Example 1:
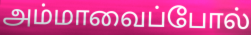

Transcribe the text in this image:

அம்மாவைப்போல்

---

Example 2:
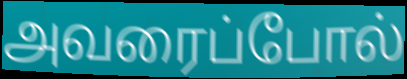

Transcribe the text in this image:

அவரைப்போல்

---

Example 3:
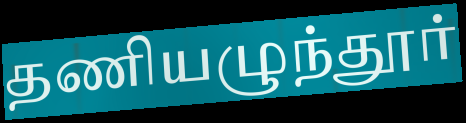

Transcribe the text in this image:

தணியழுந்தூர்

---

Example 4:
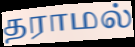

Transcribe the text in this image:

தராமல்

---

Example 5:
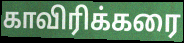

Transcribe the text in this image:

காவிரிக்கரை